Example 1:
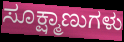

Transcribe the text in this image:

ಸೂಕ್ಷ್ಮಾಣುಗಳು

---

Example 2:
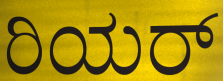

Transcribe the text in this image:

ರಿಯರ್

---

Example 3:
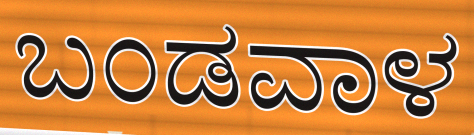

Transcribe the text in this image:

ಬಂಡವಾಳ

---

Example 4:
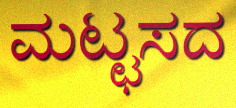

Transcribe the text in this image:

ಮಟ್ಟಸದ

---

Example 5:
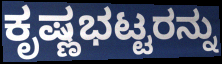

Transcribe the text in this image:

ಕೃಷ್ಣಭಟ್ಟರನ್ನು